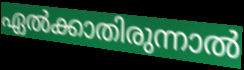
ഏൽക്കാതിരുന്നാൽ